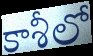
కాశీలో